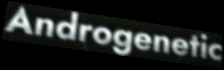
Androgenetic